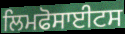
ਲਿਮਫੋਸਾਈਟਸ